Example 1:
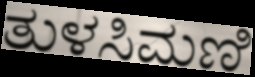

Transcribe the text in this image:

ತುಳಸಿಮಣಿ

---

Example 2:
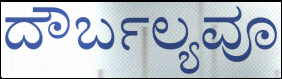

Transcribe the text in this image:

ದೌರ್ಬಲ್ಯವೂ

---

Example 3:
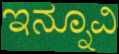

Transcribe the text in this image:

ಇನ್ನೂವಿ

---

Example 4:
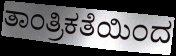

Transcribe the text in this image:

ತಾಂತ್ರಿಕತೆಯಿಂದ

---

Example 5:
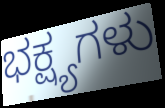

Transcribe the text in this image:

ಭಕ್ಷ್ಯಗಳು